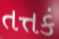
તત્તકં